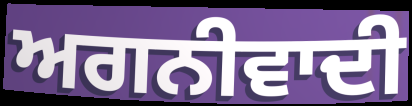
ਅਗਨੀਵਾਦੀ